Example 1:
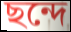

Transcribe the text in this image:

ছন্দে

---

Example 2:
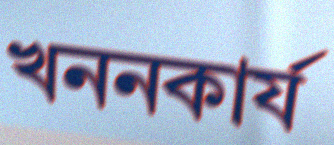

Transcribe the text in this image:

খননকাৰ্য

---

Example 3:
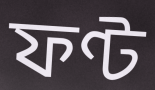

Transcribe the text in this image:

ফণ্ট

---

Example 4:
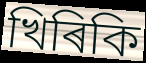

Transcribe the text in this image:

খিৰিকি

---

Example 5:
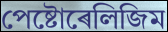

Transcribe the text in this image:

পেষ্টোৰেলিজিম